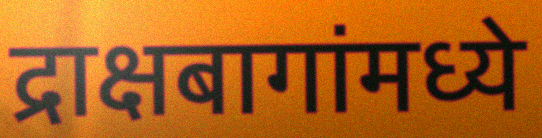
द्राक्षबागांमध्ये